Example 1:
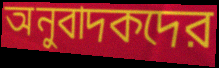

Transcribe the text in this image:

অনুবাদকদের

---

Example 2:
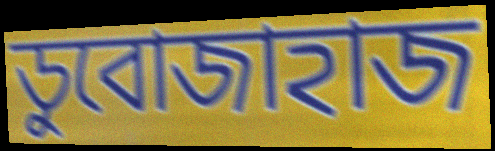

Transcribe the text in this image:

ডুবোজাহাজ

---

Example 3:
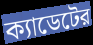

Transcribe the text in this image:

ক্যাডেটের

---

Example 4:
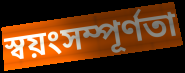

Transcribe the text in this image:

স্বয়ংসম্পূর্ণতা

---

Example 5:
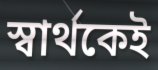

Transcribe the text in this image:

স্বার্থকেই